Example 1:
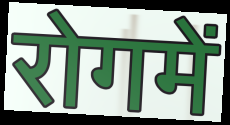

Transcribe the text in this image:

रोगमें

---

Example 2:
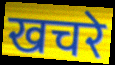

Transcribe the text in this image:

खचरे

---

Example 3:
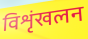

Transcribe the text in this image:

विशृंखलन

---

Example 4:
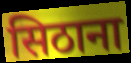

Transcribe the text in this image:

सिठाना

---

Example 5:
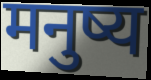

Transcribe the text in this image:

मनुष्‍य